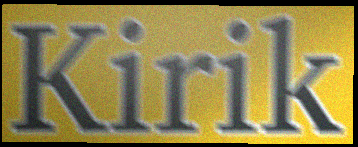
Kirik